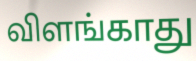
விளங்காது